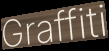
Graffiti